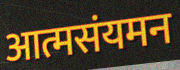
आत्मसंयमन